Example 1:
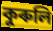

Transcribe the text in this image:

কুৰুলি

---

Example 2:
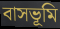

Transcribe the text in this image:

বাসভূমি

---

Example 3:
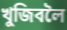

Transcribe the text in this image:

খুজিবলৈ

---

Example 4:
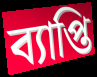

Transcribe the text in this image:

ব্যাপ্তি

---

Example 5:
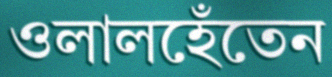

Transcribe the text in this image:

ওলালহেঁতেন